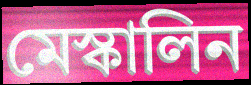
মেস্কালিন